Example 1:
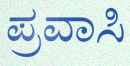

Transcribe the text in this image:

ಪ್ರವಾಸಿ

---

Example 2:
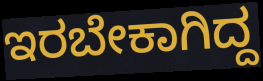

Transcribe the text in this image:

ಇರಬೇಕಾಗಿದ್ದ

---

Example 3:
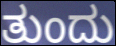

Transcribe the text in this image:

ತುಂದು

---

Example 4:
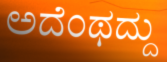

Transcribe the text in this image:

ಅದೆಂಥದ್ದು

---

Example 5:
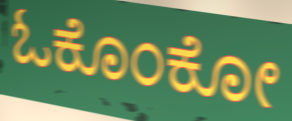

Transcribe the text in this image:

ಓಕೊಂಕೋ